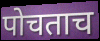
पोचताच